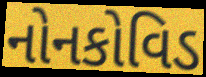
નોનકોવિડ